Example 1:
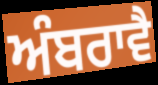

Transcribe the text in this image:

ਅੰਬਰਾਵੈ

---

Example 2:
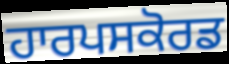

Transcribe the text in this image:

ਹਾਰਪਸਕੋਰਡ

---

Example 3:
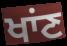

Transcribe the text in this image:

ਖਾਂਣ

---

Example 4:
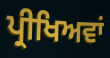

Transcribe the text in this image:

ਪ੍ਰੀਖਿਅਵਾਂ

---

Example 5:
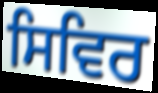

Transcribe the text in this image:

ਸਿਵਿਰ